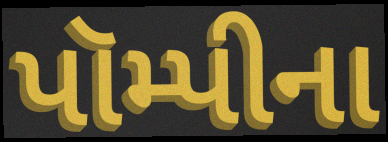
પૉમ્પીના